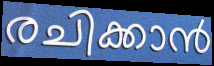
രചിക്കാൻ